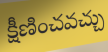
క్షీణించవచ్చు